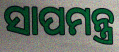
ସାପମନ୍ତ୍ର